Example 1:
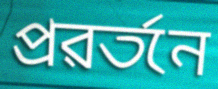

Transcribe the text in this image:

প্ৰৱৰ্তনে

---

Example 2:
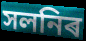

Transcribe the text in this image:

সলনিৰ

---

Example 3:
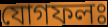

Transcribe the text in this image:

যোগফলঃ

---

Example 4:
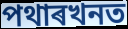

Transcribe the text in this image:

পথাৰখনত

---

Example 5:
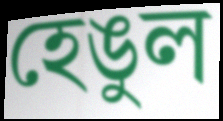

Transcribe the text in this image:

হেঙুল